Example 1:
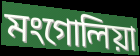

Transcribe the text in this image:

মংগোলিয়া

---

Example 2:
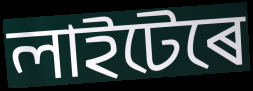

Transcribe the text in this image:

লাইটেৰে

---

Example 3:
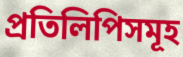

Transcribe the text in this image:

প্ৰতিলিপিসমূহ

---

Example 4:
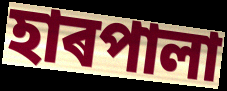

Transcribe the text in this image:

হাৰপালা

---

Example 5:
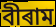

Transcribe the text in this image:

বীৰাম